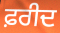
ਫ਼ਰੀਦ